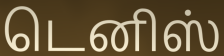
டெனிஸ்